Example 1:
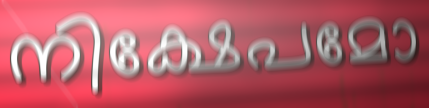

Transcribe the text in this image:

നിക്ഷേപമോ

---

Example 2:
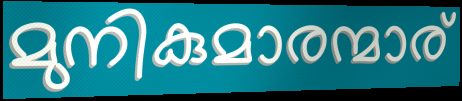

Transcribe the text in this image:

മുനികുമാരന്മാര്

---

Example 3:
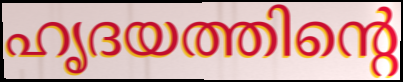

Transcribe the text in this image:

ഹൃദയത്തിന്റെ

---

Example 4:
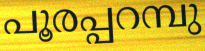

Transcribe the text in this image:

പൂരപ്പറമ്പു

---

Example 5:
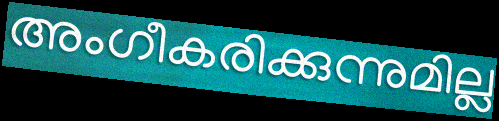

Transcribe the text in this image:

അംഗീകരിക്കുന്നുമില്ല